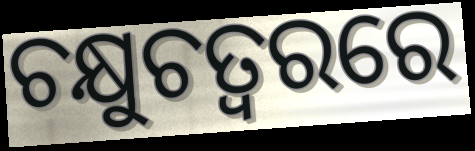
ଚକ୍ଷୁଚତ୍ୱରରେ